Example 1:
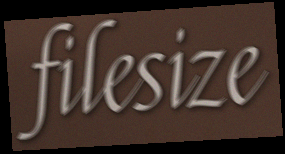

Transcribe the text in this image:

filesize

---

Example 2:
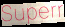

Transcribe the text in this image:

Superr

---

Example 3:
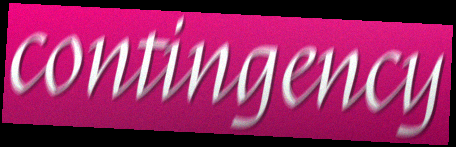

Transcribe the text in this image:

contingency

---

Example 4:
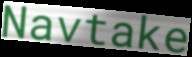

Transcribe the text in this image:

Navtake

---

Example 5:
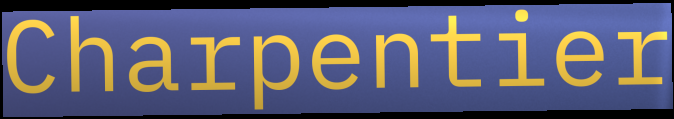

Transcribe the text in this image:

Charpentier